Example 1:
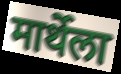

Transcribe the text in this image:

मार्थेला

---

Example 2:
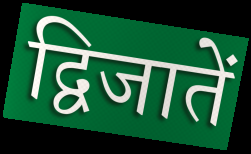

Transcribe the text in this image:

द्विजातें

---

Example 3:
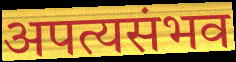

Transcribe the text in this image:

अपत्यसंभव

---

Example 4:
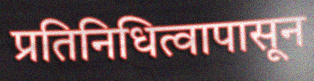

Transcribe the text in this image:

प्रतिनिधित्वापासून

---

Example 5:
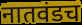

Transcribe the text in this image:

नातवंडच